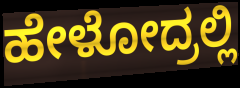
ಹೇಳೋದ್ರಲ್ಲಿ